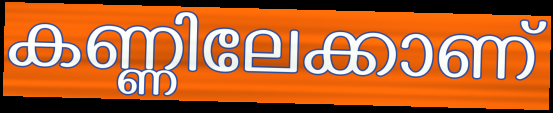
കണ്ണിലേക്കാണ്